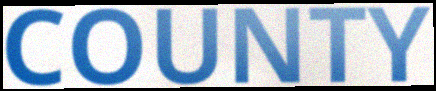
COUNTY